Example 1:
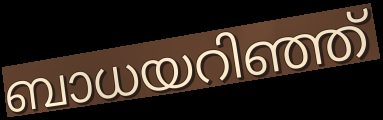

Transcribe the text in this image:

ബാധയറിഞ്ഞ്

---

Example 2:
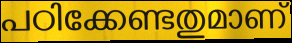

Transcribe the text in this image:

പഠിക്കേണ്ടതുമാണ്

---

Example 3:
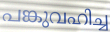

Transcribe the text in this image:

പങ്കുവഹിച്ച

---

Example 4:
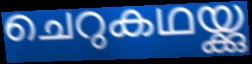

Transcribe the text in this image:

ചെറുകഥയ്ക്കു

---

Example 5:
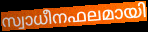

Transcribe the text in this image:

സ്വാധീനഫലമായി